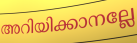
അറിയിക്കാനല്ലേ